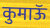
कुमाऊॅ